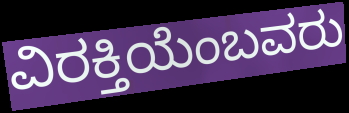
ವಿರಕ್ತಿಯೆಂಬವರು